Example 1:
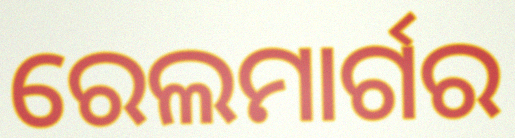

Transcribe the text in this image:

ରେଲମାର୍ଗର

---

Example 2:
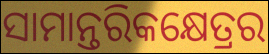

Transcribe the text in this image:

ସାମାନ୍ତରିକକ୍ଷେତ୍ରର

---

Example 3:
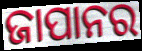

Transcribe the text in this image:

ଜାପାନର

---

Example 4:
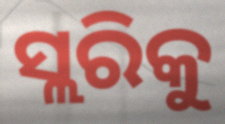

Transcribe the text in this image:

ସ୍ଲରିକୁ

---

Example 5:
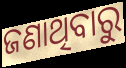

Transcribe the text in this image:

ଜଣାଥିବାରୁ